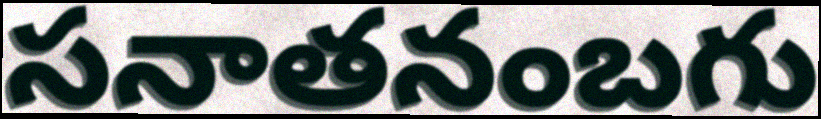
సనాతనంబగు